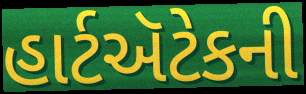
હાર્ટઍટેકની